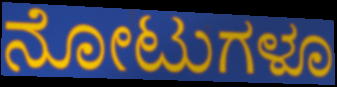
ನೋಟುಗಳೂ